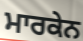
ਮਾਰਕੇਨ